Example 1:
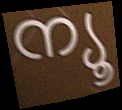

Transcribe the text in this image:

ന്യൂ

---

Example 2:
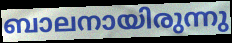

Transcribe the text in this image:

ബാലനായിരുന്നു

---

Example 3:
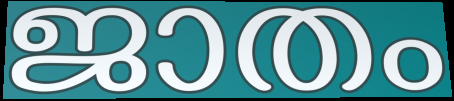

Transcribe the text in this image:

ജാതം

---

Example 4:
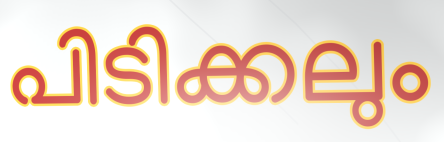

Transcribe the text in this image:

പിടിക്കലും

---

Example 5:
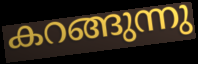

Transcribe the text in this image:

കറങ്ങുന്നു